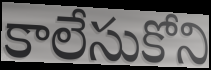
కాలేసుకోని